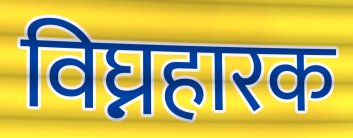
विघ्नहारक